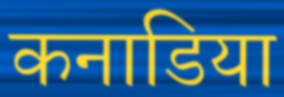
कनाडिया